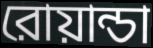
রোয়ান্ডা